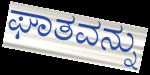
ಘಾತವನ್ನು